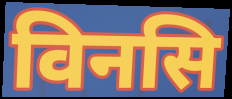
विनसि